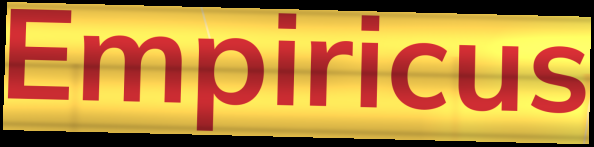
Empiricus